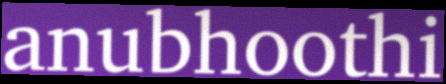
anubhoothi